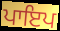
ਪਾਇਪ